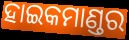
ହାଇକମାଣ୍ଡର